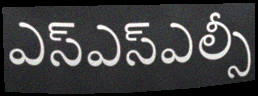
ఎస్ఎస్ఎల్సీ